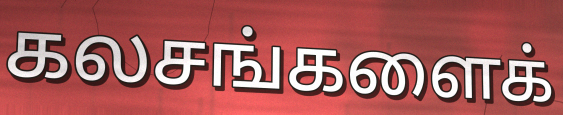
கலசங்களைக்